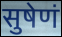
सुषेणं